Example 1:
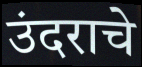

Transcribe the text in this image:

उंदराचे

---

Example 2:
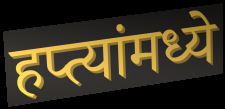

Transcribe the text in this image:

हप्त्यांमध्ये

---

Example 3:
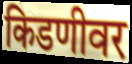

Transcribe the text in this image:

किडणीवर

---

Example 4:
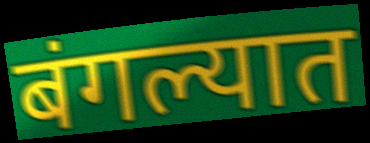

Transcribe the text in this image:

बंगल्यात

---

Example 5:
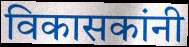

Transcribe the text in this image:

विकासकांनी